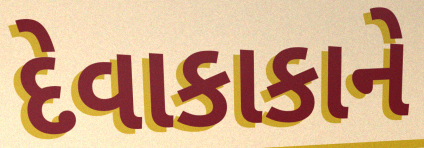
દેવાકાકાને